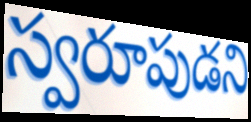
స్వరూపుడని